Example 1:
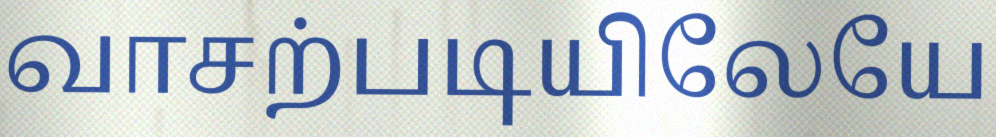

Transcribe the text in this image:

வாசற்படியிலேயே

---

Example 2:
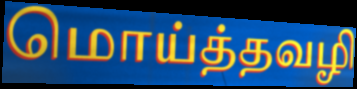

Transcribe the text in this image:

மொய்த்தவழி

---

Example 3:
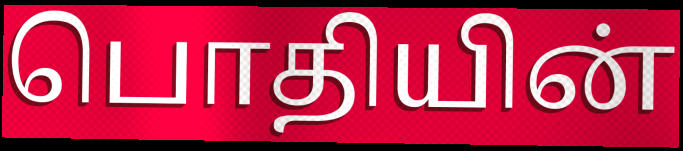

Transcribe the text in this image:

பொதியின்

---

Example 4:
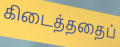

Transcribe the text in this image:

கிடைத்ததைப்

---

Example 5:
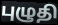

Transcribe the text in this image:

புழுதி